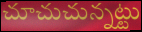
చూచుచున్నట్టు